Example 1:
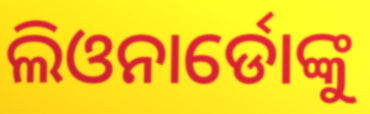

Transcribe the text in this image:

ଲିଓନାର୍ଡୋଙ୍କୁ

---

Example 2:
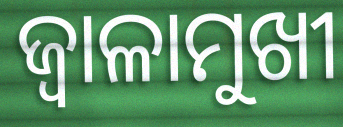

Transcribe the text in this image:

ଜ୍ୱାଳାମୁଖୀ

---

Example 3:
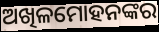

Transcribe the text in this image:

ଅଖିଳମୋହନଙ୍କର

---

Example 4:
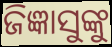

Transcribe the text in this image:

ଜିଜ୍ଞାସୁଙ୍କୁ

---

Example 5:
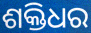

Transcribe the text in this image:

ଶକ୍ତିଧର